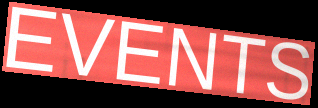
EVENTS